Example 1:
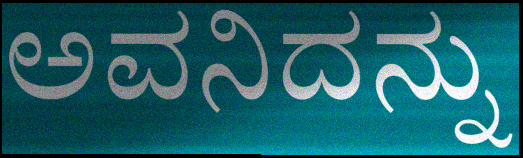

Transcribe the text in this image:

ಅವನಿದನ್ನು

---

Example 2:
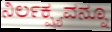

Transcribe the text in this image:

ನಿರ್ಲಕ್ಷ್ಯವನ್ನೂ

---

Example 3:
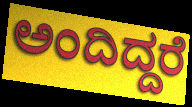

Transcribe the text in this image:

ಅಂದಿದ್ದರೆ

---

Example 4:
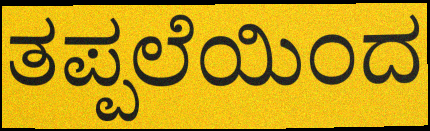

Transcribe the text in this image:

ತಪ್ಪಲೆಯಿಂದ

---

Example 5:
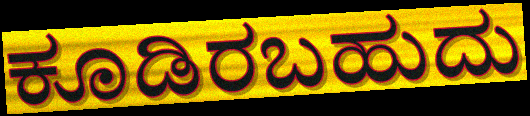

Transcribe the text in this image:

ಕೂಡಿರಬಹುದು